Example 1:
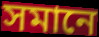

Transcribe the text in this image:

সমানে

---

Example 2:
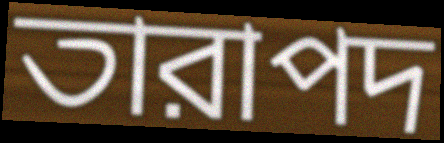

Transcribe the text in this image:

তারাপদ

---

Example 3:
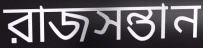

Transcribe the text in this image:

রাজসন্তান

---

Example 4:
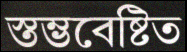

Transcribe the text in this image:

স্তম্ভবেষ্টিত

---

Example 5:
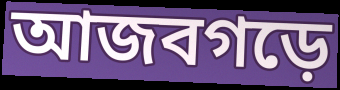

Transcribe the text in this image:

আজবগড়ে